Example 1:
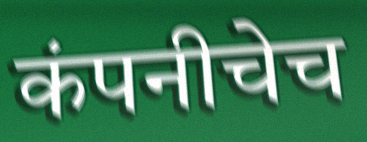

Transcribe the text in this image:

कंपनीचेच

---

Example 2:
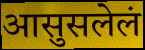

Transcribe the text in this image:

आसुसलेलं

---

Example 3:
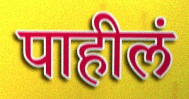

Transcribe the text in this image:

पाहीलं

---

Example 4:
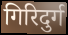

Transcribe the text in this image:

गिरिदुर्ग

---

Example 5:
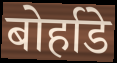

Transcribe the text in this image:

बोर्हाडे